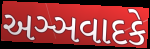
અઞ્ઞવાદકે